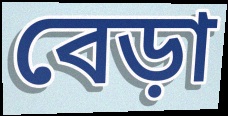
বেড়া